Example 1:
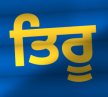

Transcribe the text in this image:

ਤਿਰੂ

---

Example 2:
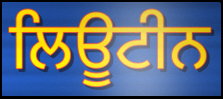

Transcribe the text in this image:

ਲਿਊਟੀਨ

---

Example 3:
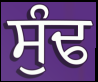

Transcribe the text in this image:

ਸੁੰਢ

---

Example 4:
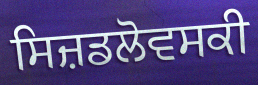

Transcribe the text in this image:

ਸਿਜ਼ਡਲੋਵਸਕੀ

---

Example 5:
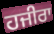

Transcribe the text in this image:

ਹਜੀਰਾ